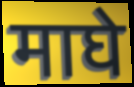
माघे